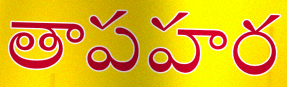
తాపహర